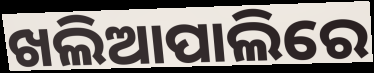
ଖଲିଆପାଲିରେ